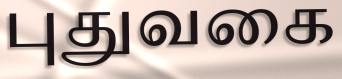
புதுவகை